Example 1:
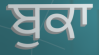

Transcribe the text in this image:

ਬੁਕਾ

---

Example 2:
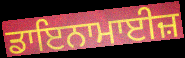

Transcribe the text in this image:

ਡਾਇਨਾਮਾਈਜ਼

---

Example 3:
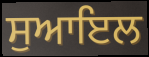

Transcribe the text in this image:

ਸੁਆਇਲ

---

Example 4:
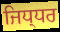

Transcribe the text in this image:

ਜਿਧ੍ਧਰ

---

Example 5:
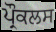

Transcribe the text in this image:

ਪ੍ਰੌਕਲਸ